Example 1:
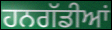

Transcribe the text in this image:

ਹਨਗੱਡੀਆਂ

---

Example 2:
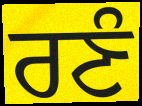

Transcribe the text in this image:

ਰਣੰ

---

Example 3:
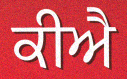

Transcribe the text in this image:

ਕੀਐ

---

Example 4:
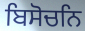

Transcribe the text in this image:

ਬਿਸੋਚਨਿ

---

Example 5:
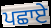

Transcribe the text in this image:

ਪਛਾਏ